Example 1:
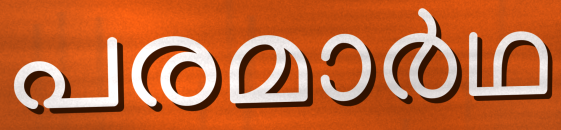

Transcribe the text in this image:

പരമാർഥ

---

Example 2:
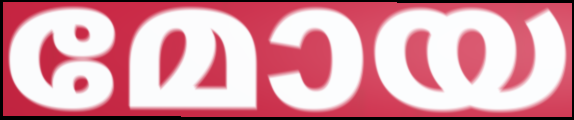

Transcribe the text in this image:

മോയ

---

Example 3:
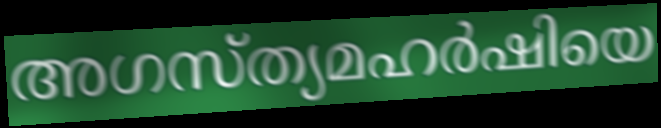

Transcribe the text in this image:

അഗസ്ത്യമഹർഷിയെ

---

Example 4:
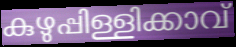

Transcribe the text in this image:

കുഴുപ്പിള്ളിക്കാവ്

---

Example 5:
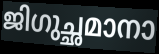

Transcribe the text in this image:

ജിഗുച്ഛമാനാ